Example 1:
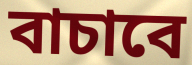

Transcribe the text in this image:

বাচাবে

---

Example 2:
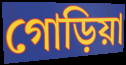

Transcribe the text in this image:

গোড়িয়া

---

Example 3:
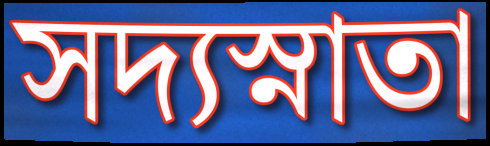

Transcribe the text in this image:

সদ্যস্নাতা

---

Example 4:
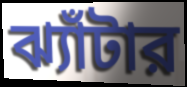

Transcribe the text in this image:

ঝ্যাঁটার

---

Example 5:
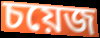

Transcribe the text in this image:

চয়েজ